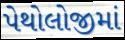
પેથોલોજીમાં